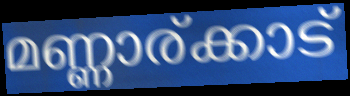
മണ്ണാര്ക്കാട്